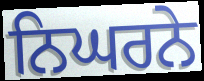
ਨਿਘਰਨੇ